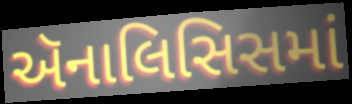
ઍનાલિસિસમાં